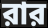
রার